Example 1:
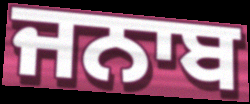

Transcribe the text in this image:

ਜਨਾਬ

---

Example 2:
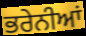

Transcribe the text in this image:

ਭਰੇਨੀਆਂ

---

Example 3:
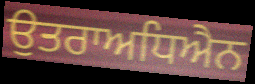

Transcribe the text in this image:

ਉਤਰਾਅਧਿਐਨ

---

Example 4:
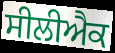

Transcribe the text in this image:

ਸੀਲੀਐਕ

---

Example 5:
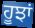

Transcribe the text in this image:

ਹੂਝਾਂ